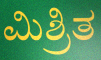
ಮಿಶ್ರಿತ